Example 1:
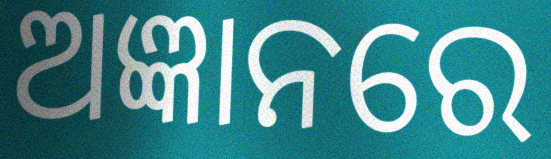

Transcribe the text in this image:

ଅଜ୍ଞାନରେ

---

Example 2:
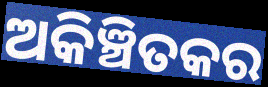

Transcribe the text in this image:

ଅକିଞ୍ଚିତକର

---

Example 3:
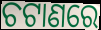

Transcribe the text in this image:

ଚଟାଣରେ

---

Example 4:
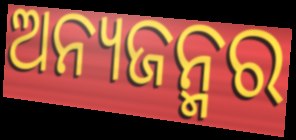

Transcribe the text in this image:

ଅନ୍ୟଜନ୍ମର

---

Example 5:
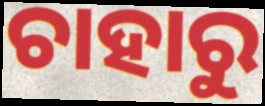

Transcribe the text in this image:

ଚାହାରୁ